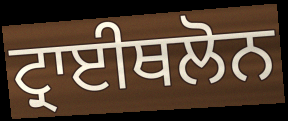
ਟ੍ਰਾਈਥਲੋਨ